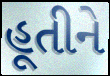
હૂતીને